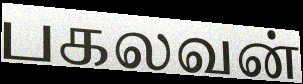
பகலவன்